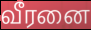
வீரனை